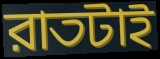
রাতটাই